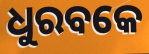
ଧୁରବକେ